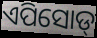
ଏପିସୋଡ୍